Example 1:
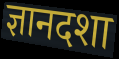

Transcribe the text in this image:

ज्ञानदशा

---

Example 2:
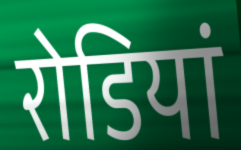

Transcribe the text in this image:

रोडियां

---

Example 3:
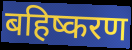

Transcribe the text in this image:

बहिष्करण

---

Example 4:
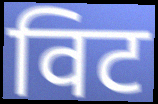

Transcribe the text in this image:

विट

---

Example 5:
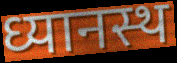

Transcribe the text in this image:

ध्यानस्थ